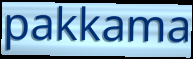
pakkama